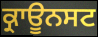
ਕ੍ਰਾਊਨਸਟ